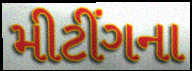
મીટીંગના